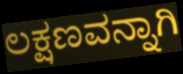
ಲಕ್ಷಣವನ್ನಾಗಿ